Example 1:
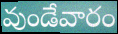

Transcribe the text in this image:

వుండేవారం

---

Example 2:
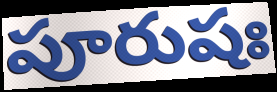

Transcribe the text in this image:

పూరుషః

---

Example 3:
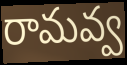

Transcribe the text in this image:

రామవ్వ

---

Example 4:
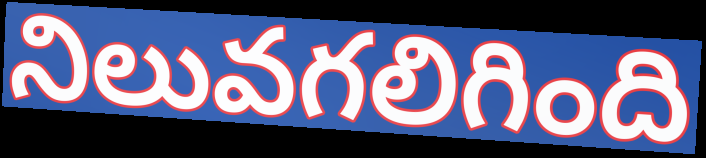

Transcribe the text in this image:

నిలువగలిగింది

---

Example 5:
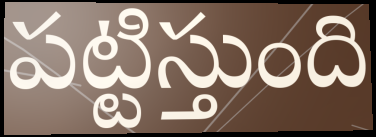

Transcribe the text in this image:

పట్టిస్తుంది